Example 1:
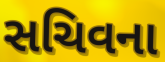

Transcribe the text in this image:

સચિવના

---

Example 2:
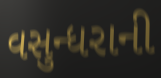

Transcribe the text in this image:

વસુન્ધરાની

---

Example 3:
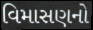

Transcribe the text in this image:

વિમાસણનો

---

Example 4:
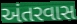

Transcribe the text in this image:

અંતરવાસ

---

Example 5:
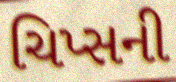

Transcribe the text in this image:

ચિપ્સની